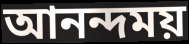
আনন্দময়